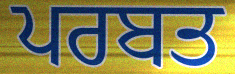
ਪਰਬਤ